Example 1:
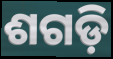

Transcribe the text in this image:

ଶଗଡ଼ି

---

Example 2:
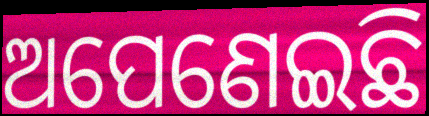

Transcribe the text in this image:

ଅପେଣେଇଛି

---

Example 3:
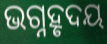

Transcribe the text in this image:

ଭଗ୍ନହୃଦୟ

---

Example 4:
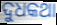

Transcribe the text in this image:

ଦୁଧକଥା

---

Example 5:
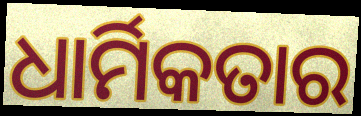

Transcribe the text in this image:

ଧାର୍ମିକତାର